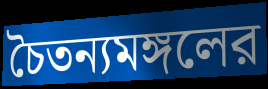
চৈতন্যমঙ্গলের